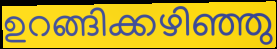
ഉറങ്ങിക്കഴിഞ്ഞു